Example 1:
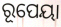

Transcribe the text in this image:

ରୂପେୟା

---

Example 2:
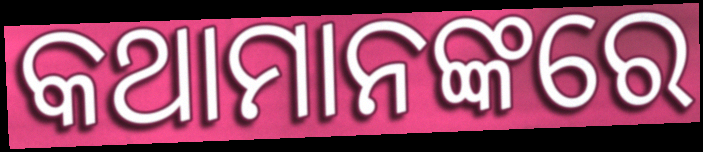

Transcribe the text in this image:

କଥାମାନଙ୍କରେ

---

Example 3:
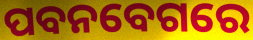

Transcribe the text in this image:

ପବନବେଗରେ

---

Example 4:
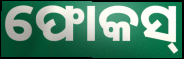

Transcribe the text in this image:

ଫୋକସ୍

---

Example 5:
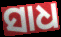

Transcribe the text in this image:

ସାଧ